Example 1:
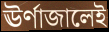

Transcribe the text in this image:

ঊর্ণাজালেই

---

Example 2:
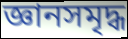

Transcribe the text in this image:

জ্ঞানসমৃদ্ধ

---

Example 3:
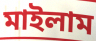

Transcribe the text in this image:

মাইলাম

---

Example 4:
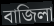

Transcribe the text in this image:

বাজিলা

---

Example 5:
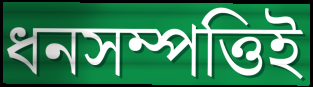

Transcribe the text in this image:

ধনসম্পত্তিই